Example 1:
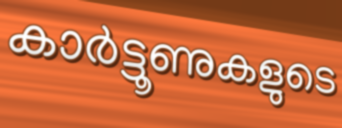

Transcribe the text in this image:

കാർട്ടൂണുകളുടെ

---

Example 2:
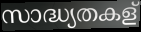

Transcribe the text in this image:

സാദ്ധ്യതകള്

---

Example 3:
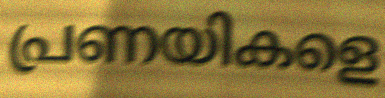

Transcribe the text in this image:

പ്രണയികളെ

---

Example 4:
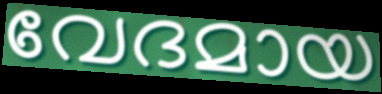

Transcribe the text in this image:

വേദമായ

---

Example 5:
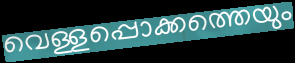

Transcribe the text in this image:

വെള്ളപ്പൊക്കത്തെയും